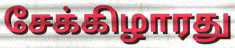
சேக்கிழாரது